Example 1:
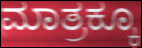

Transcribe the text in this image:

ಮಾತ್ರಕ್ಕೂ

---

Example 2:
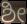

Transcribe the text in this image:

ಶೀ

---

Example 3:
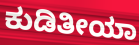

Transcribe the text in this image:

ಕುಡಿತೀಯಾ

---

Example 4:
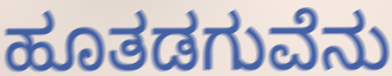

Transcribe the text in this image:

ಹೂತಡಗುವೆನು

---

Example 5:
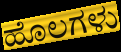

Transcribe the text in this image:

ಹೊಲಗಳು